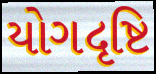
યોગદૃષ્ટિ